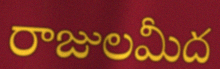
రాజులమీద